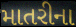
માતરીના